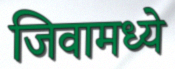
जिवामध्ये